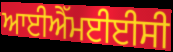
ਆਈਐੱਮਈਈਸੀ